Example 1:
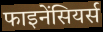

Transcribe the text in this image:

फाइनेंसियर्स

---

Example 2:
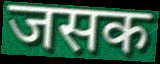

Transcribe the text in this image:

जसक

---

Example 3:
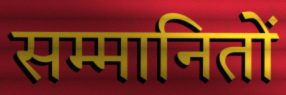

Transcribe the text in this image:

सम्मानितों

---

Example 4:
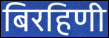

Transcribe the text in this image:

बिरहिणी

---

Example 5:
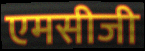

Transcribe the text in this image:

एमसीजी